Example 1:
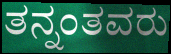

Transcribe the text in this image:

ತನ್ನಂತವರು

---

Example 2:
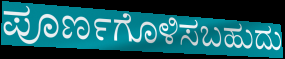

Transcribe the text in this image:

ಪೂರ್ಣಗೊಳಿಸಬಹುದು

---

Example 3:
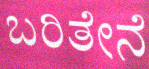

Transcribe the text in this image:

ಬರಿತೇನೆ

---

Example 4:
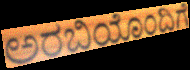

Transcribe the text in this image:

ಅರಬಿಯೊಂದಿಗೆ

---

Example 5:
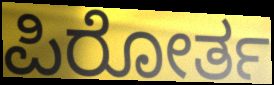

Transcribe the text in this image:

ಪಿರೋರ್ತ